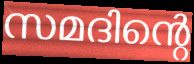
സമദിന്റെ